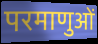
परमाणुओं